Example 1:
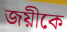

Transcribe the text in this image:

জয়ীকে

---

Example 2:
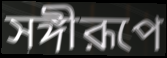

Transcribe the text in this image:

সঙ্গীরূপে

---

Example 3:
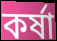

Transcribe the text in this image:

কর্ষা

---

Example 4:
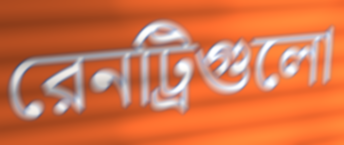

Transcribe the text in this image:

রেনট্রিগুলো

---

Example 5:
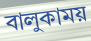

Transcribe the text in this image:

বালুকাময়